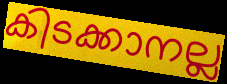
കിടക്കാനല്ല